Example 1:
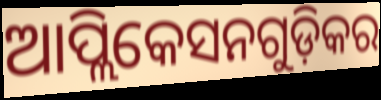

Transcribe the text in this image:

ଆପ୍ଲିକେସନଗୁଡ଼ିକର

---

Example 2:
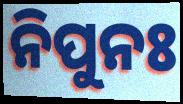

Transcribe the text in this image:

ନିପୁନଃ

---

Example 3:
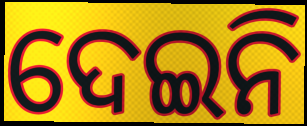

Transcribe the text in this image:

ଦେଇନି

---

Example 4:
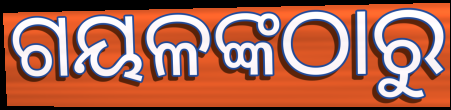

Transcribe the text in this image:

ଗୟଳଙ୍କଠାରୁ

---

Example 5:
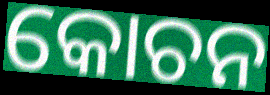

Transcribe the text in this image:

କୋଚନ